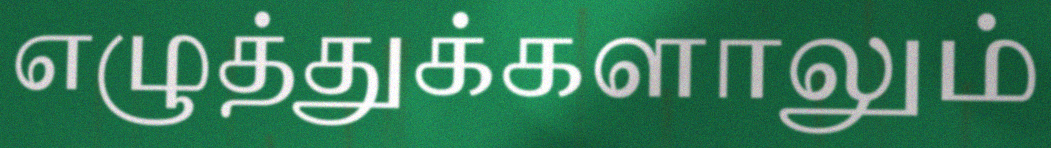
எழுத்துக்களாலும்